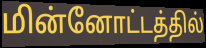
மின்னோட்டத்தில்